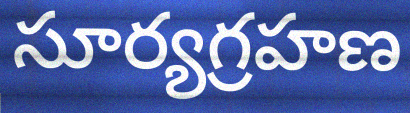
సూర్యగ్రహణ